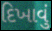
દિખાવું